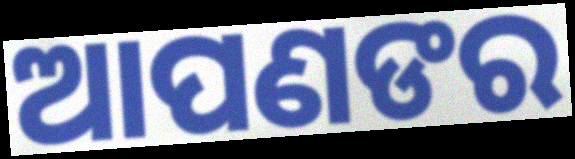
ଆପଣଙର